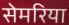
सेमरिया